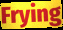
Frying